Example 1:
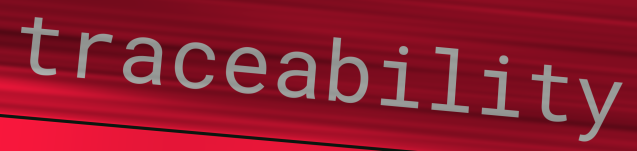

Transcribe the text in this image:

traceability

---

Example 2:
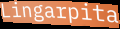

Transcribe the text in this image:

Lingarpita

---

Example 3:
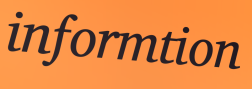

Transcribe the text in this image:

informtion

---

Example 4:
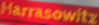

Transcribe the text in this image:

Harrasowitz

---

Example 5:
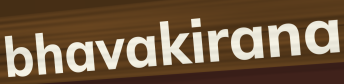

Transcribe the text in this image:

bhavakirana